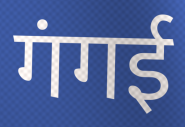
गंगई